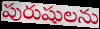
పురుషులను